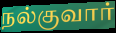
நல்குவார்